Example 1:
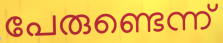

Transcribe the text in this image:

പേരുണ്ടെന്ന്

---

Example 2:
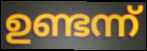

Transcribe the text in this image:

ഉണ്ടന്ന്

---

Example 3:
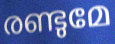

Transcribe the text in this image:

രണ്ടുമേ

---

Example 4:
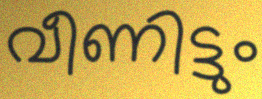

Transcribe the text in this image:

വീണിട്ടും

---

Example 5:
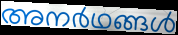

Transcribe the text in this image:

അനർഥങ്ങൾ